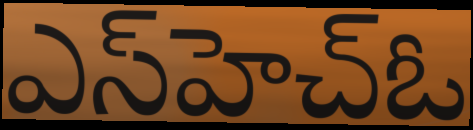
ఎస్‌హెచ్ఓ